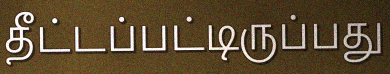
தீட்டப்பட்டிருப்பது